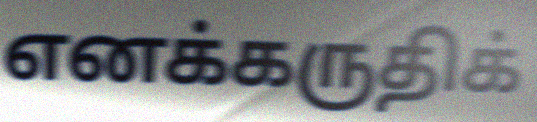
எனக்கருதிக்